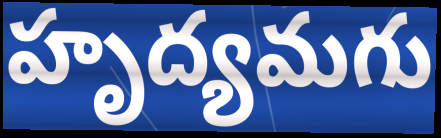
హృద్యమగు